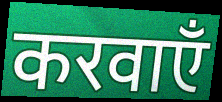
करवाएँ